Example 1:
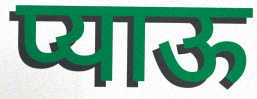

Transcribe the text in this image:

प्याऊ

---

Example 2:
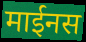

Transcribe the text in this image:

माईनस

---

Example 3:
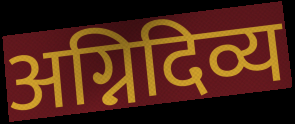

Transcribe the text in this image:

अग्निदिव्य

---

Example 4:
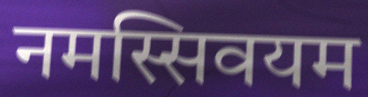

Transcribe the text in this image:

नमस्सिवयम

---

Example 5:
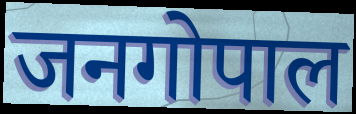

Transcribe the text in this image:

जनगोपाल